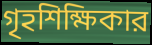
গৃহশিক্ষিকার